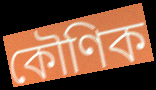
কৌণিক